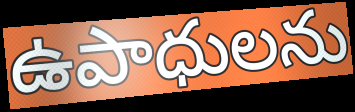
ఉపాధులను